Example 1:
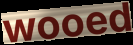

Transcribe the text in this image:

wooed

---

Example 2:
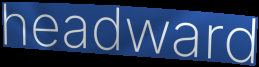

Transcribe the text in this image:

headward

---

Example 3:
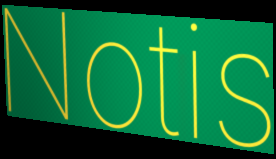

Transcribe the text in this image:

Notis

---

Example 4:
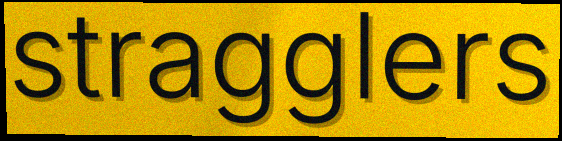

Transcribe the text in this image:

stragglers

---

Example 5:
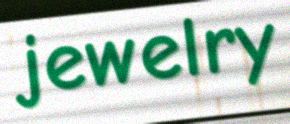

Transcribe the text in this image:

jewelry